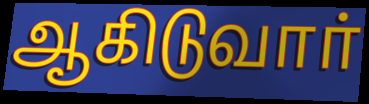
ஆகிடுவார்